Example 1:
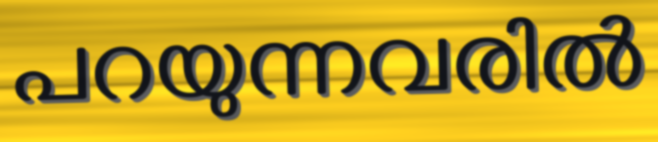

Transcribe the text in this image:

പറയുന്നവരിൽ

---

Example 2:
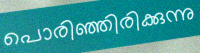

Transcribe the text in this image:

പൊരിഞ്ഞിരിക്കുന്നു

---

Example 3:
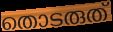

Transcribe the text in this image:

തൊടരുത്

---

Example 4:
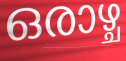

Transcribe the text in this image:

ഒരാഴ്ച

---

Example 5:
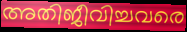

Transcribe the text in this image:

അതിജീവിച്ചവരെ